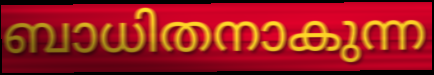
ബാധിതനാകുന്ന